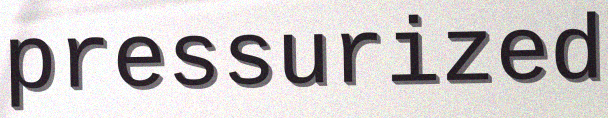
pressurized